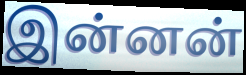
இன்னன்